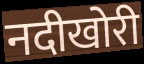
नदीखोरी